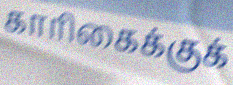
காரிகைக்குக்